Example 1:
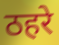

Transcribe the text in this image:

ठहरे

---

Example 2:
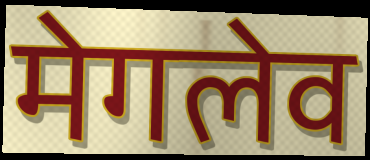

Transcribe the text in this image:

मेगलेव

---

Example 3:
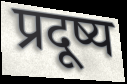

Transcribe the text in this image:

प्रदूष्य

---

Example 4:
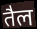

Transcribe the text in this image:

तैल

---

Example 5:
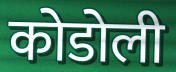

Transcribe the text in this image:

कोडोली